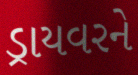
ડ્રાયવરને